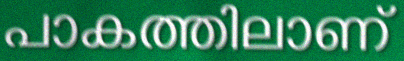
പാകത്തിലാണ്